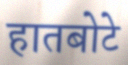
हातबोटे